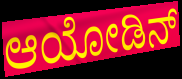
ಆಯೋಡಿನ್